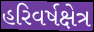
હરિવર્ષક્ષેત્ર